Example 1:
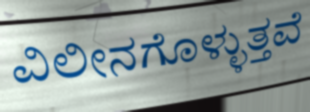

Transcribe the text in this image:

ವಿಲೀನಗೊಳ್ಳುತ್ತವೆ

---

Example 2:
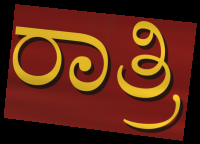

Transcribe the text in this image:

ರಾತ್ರಿ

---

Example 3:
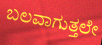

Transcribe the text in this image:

ಬಲವಾಗುತ್ತಲೇ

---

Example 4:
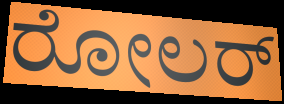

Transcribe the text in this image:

ರೋಲರ್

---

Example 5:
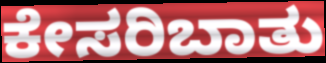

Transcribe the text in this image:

ಕೇಸರಿಬಾತು